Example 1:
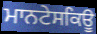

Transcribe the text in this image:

ਮਾਨਟੇਸਕਿਊ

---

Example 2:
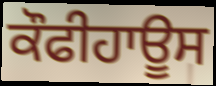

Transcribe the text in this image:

ਕੌਫੀਹਾਊਸ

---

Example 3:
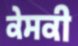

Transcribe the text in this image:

ਕੇਸਕੀ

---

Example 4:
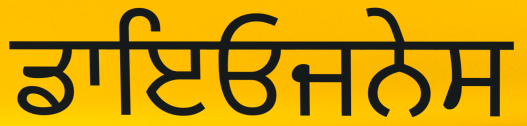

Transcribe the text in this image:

ਡਾਇਓਜਨੇਸ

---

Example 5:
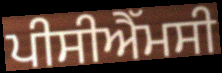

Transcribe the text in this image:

ਪੀਸੀਐੱਮਸੀ